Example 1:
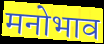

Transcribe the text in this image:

मनोभाव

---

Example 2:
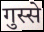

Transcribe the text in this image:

गुस्‍से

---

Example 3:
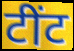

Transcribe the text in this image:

टींट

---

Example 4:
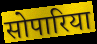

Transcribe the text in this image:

सोपारिया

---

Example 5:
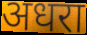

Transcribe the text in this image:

अधरा